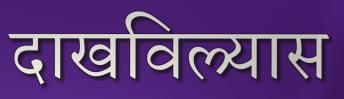
दाखविल्यास